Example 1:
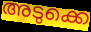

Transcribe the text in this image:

അടുക്കെ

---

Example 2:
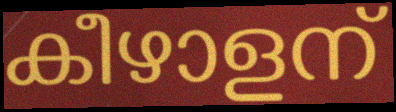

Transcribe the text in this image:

കീഴാളന്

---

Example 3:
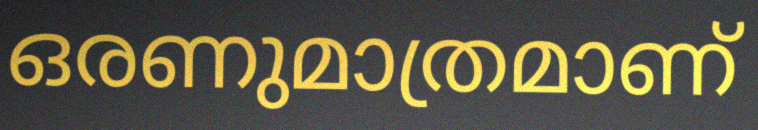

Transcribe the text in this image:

ഒരണുമാത്രമാണ്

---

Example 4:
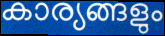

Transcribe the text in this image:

കാര്യങ്ങളും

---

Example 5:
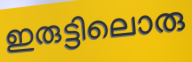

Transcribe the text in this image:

ഇരുട്ടിലൊരു